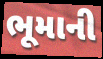
ભૂમાની